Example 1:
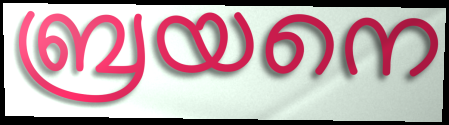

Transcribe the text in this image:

ബ്രയനെ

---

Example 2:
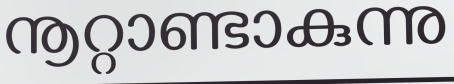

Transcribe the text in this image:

നൂറ്റാണ്ടാകുന്നു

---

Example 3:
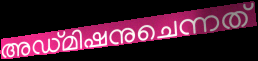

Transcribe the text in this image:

അഡ്മിഷനുചെന്നത്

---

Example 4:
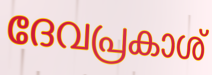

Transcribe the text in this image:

ദേവപ്രകാശ്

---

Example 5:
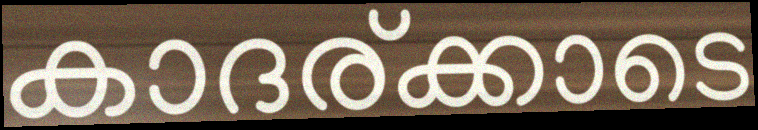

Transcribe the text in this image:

കാദര്ക്കാടെ